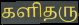
களிதரு